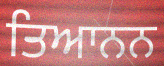
ਤਿਆਨਨ